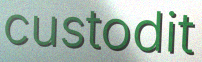
custodit